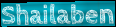
Shailaben